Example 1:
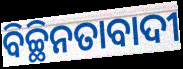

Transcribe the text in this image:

ବିଚ୍ଛିନତାବାଦୀ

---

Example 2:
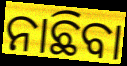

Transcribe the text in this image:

ନାଛିବା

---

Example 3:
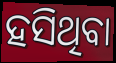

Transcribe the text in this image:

ହସିଥିବା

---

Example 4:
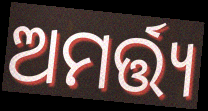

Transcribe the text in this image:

ଅମର୍ତ୍ତ୍ୟ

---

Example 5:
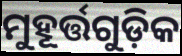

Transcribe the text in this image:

ମୁହୂର୍ତ୍ତଗୁଡ଼ିକ